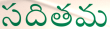
సదితమ